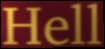
Hell